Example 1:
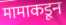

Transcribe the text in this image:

मामाकडून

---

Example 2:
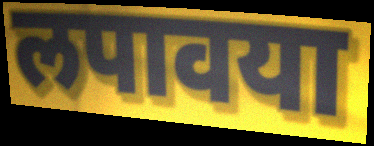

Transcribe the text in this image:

लपावया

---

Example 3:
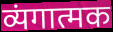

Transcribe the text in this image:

व्यंगात्मक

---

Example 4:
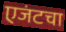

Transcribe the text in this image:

एजंटचा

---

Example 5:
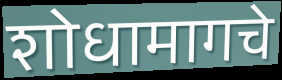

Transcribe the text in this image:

शोधामागचे